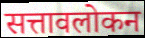
सत्तावलोकन